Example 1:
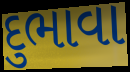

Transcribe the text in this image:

દુભાવા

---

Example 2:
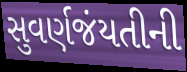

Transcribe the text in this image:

સુવર્ણજંયતીની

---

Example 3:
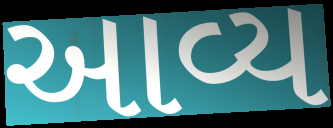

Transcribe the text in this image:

આવ્ય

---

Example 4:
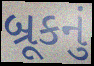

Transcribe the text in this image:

બ્રૂકનું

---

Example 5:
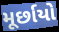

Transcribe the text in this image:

મૂર્છાયો